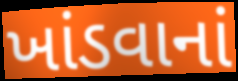
ખાંડવાનાં